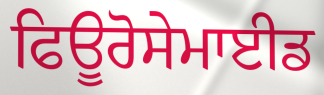
ਫਿਊਰੋਸੇਮਾਈਡ